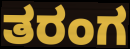
ತರಂಗ